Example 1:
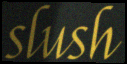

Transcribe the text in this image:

slush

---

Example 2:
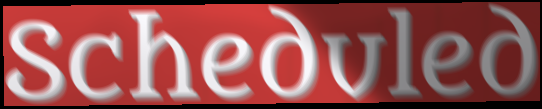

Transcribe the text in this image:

Scheduled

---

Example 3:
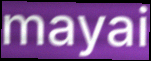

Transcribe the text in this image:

mayai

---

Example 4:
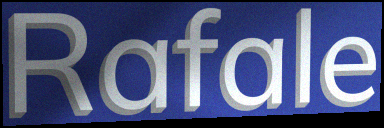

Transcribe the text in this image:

Rafale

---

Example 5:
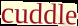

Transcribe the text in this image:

cuddle